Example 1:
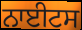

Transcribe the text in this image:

ਨਾਈਟਸ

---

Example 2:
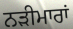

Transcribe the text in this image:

ਨੜੀਮਾਰਾਂ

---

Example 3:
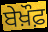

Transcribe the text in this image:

ਬੇਖ਼ੌਫ਼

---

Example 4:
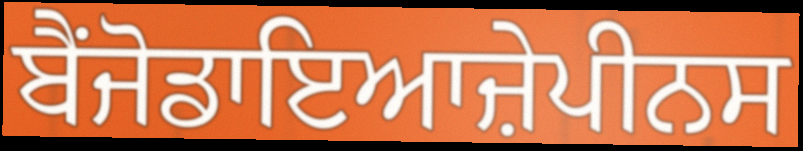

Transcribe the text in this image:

ਬੈਂਜੋਡਾਇਆਜ਼ੇਪੀਨਸ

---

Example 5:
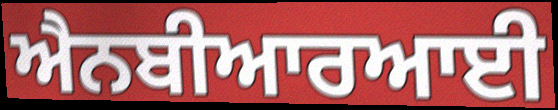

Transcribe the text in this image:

ਐਨਬੀਆਰਆਈ